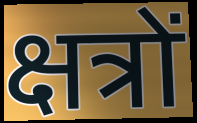
क्षत्रों